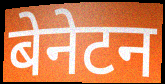
बेनेटन